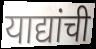
याद्यांची